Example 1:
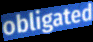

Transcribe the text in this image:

obligated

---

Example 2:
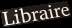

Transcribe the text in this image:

Libraire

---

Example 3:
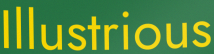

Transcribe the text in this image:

Illustrious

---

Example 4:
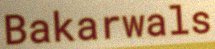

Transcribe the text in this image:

Bakarwals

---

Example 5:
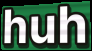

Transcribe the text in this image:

huh